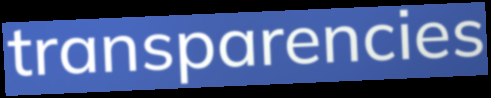
transparencies